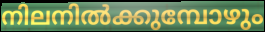
നിലനിൽക്കുമ്പോഴും